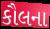
કૌલના